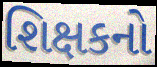
શિક્ષકનો